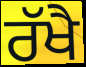
ਰੱਖੈ